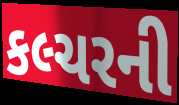
કલ્ચરની